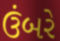
ઉંબરે